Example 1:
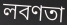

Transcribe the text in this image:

লবণতা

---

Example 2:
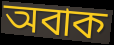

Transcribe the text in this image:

অবাক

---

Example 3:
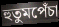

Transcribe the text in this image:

হুতুমপেঁচা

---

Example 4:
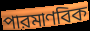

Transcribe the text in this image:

পারমাণবিক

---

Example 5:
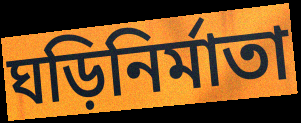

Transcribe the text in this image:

ঘড়িনির্মাতা